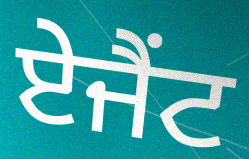
ਏਜੈਂਟ